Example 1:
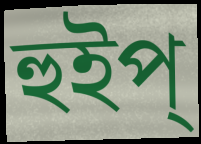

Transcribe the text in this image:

হুইপ্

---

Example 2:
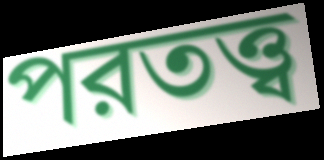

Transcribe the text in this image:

পরতত্ত্ব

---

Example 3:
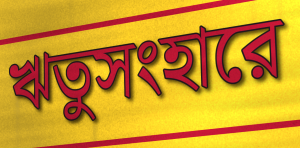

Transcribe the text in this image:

ঋতুসংহারে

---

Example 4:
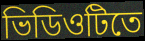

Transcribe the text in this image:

ভিডিওটিতে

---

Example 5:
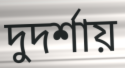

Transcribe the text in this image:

দুদর্শায়